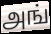
அங்